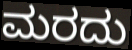
ಮರದು